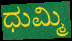
ಧುಮ್ಮಿ